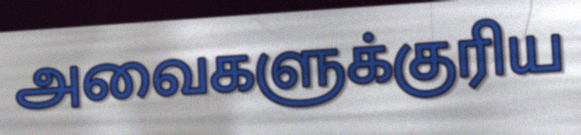
அவைகளுக்குரிய